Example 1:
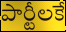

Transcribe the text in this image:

పార్టీలకే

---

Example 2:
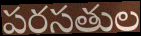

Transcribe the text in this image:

పరసతుల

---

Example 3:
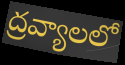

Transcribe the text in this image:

ద్రవ్యాలలో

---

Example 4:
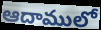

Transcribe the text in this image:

ఆదాములో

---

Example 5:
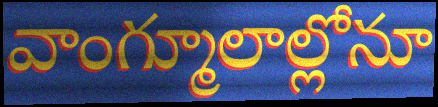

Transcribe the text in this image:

వాంగ్మూలాల్లోనూ